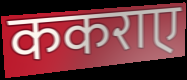
ककराए